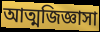
আত্মজিজ্ঞাসা